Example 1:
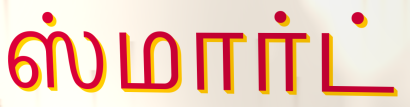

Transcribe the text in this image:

ஸ்மார்ட்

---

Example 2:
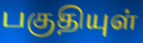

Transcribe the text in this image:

பகுதியுள்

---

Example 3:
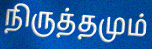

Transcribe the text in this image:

நிருத்தமும்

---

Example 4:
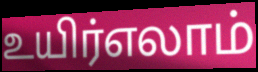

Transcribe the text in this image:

உயிர்எலாம்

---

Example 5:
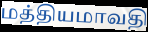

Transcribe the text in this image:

மத்தியமாவதி